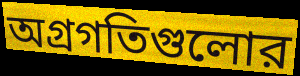
অগ্রগতিগুলোর